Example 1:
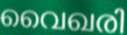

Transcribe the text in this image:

വൈഖരി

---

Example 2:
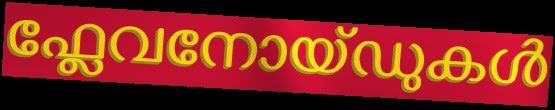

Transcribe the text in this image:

ഫ്ലേവനോയ്ഡുകൾ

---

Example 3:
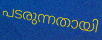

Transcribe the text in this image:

പടരുന്നതായി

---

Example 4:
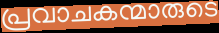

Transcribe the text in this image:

പ്രവാചകന്മാരുടെ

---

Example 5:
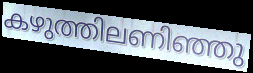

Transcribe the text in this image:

കഴുത്തിലണിഞ്ഞു